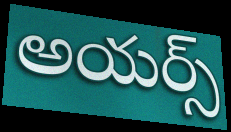
అయర్స్